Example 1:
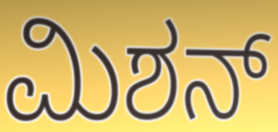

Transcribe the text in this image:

ಮಿಶನ್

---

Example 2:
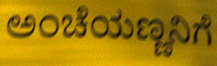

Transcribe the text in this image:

ಅಂಚೆಯಣ್ಣನಿಗೆ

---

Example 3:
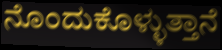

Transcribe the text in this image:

ನೊಂದುಕೊಳ್ಳುತ್ತಾನೆ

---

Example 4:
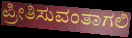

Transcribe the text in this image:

ಪ್ರೀತಿಸುವಂತಾಗಲಿ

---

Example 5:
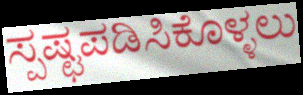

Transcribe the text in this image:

ಸ್ಪಷ್ಟಪಡಿಸಿಕೊಳ್ಳಲು